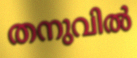
തനുവിൽ